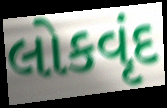
લોકવૃંદ